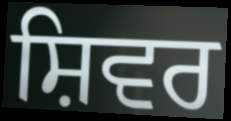
ਸ਼ਿਵਰ